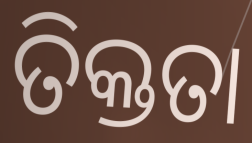
ତିକ୍ତତା